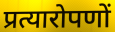
प्रत्यारोपणों